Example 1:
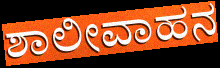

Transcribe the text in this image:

ಶಾಲೀವಾಹನ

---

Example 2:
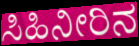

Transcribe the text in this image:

ಸಿಹಿನೀರಿನ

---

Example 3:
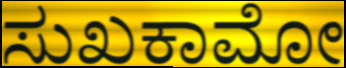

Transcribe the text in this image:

ಸುಖಕಾಮೋ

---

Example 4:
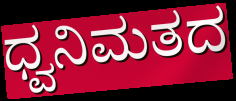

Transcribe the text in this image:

ಧ್ವನಿಮತದ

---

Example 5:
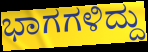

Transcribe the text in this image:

ಭಾಗಗಳಿದ್ದು